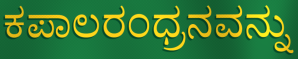
ಕಪಾಲರಂಧ್ರನವನ್ನು